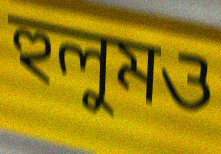
হুলুমও